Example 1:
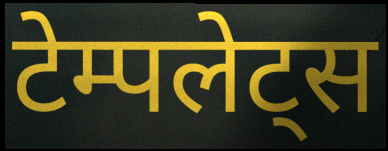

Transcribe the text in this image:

टेम्पलेट्स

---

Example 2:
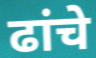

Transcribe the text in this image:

ढांचे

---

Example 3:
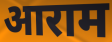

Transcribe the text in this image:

आराम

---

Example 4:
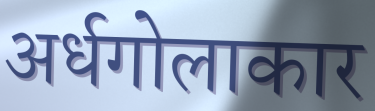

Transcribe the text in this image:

अर्धगोलाकार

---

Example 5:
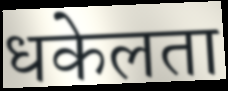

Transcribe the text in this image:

धकेलता